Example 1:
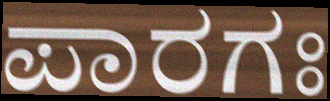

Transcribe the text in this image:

ಪಾರಗಃ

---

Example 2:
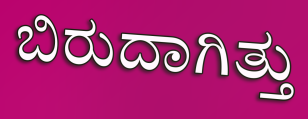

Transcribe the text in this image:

ಬಿರುದಾಗಿತ್ತು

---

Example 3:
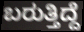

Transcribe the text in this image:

ಬರುತ್ತಿದ್ದೆ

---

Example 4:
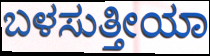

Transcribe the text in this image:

ಬಳಸುತ್ತೀಯಾ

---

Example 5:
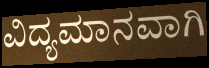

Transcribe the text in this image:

ವಿದ್ಯಮಾನವಾಗಿ